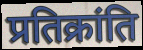
प्रतिक्रांति